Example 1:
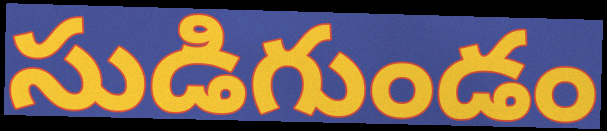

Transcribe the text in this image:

సుడిగుండం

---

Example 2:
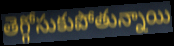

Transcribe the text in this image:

తెగ్గోసుకుపోతున్నాయి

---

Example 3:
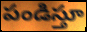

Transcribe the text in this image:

పండిస్తూ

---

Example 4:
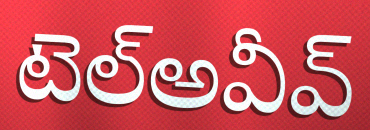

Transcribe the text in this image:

టెల్అవీవ్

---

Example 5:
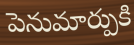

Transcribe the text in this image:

పెనుమార్పుకి